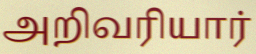
அறிவரியார்